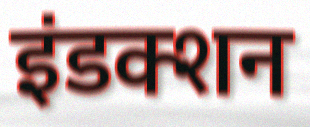
इंडक्शन